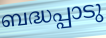
ബദ്ധപ്പാടു